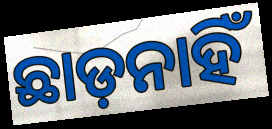
ଛାଡ଼ନାହିଁ